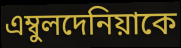
এম্বুলদেনিয়াকে